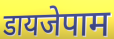
डायजेपाम